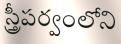
స్త్రీపర్వంలోని